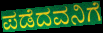
ಪಡೆದವನಿಗೆ